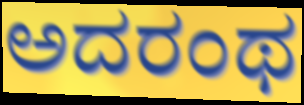
ಅದರಂಥ